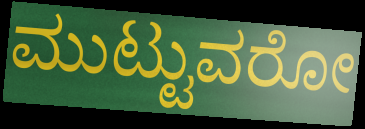
ಮುಟ್ಟುವರೋ